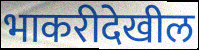
भाकरीदेखील